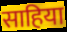
साहिया